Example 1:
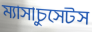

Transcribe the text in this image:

ম্যাসাচুসেটস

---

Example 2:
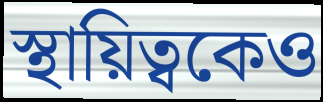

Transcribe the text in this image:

স্থায়িত্বকেও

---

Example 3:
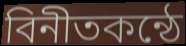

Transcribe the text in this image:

বিনীতকন্ঠে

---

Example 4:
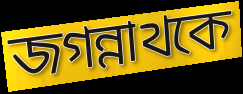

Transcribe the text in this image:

জগন্নাথকে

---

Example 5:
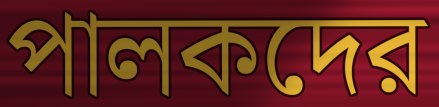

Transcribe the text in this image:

পালকদের